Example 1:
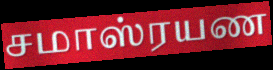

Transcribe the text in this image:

சமாஸ்ரயண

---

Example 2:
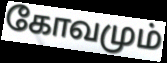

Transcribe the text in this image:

கோவமும்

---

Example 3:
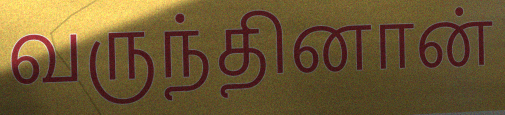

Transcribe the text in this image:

வருந்தினான்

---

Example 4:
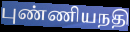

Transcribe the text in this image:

புண்ணியநதி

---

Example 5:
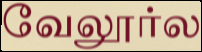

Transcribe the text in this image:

வேலூர்ல